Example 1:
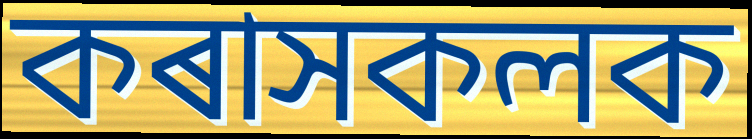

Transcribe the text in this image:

কৰাসকলক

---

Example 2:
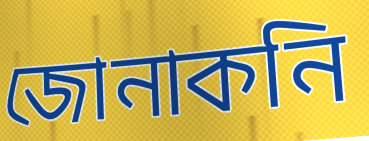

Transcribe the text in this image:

জোনাকনি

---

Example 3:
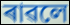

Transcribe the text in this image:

ৰাৱলে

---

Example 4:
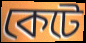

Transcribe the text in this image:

কেটে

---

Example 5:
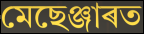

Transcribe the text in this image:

মেছেঞ্জাৰত